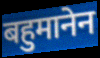
बहुमानेन